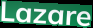
Lazare